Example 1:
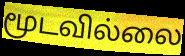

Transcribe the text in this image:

மூடவில்லை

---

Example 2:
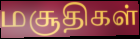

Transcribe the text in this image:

மசூதிகள்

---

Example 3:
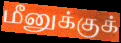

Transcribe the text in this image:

மீனுக்குக்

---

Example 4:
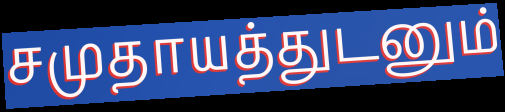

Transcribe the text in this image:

சமுதாயத்துடனும்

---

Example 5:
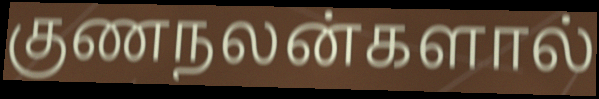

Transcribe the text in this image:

குணநலன்களால்